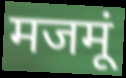
मजमूं